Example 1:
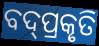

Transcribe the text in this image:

ବଦ୍‌ପ୍ରକୃତି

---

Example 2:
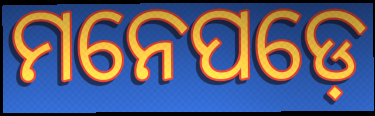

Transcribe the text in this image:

ମନେପଡ଼େ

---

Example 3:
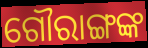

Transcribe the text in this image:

ଗୌରାଙ୍ଗଙ୍କ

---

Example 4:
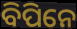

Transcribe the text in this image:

ବିପିନେ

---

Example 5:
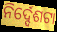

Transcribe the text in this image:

ନିର୍ଦ୍ଦେଶଟା